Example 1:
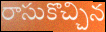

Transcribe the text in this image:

రాసుకొచ్చిన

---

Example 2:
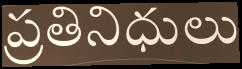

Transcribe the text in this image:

ప్రతినిధులు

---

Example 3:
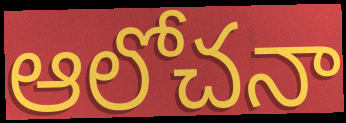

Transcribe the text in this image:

ఆలోచనా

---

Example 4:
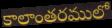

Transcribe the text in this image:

కాలాంతరములో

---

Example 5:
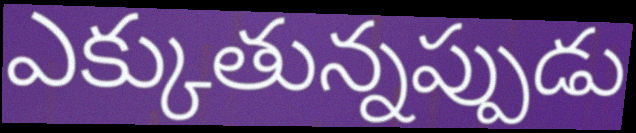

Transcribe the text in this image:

ఎక్కుతున్నప్పుడు